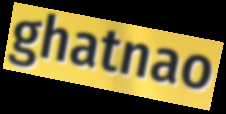
ghatnao